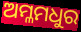
ଅମ୍ଳମଧୁର